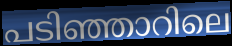
പടിഞ്ഞാറിലെ